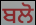
ਬਲੋ